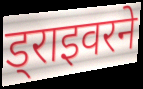
ड्राइवरने